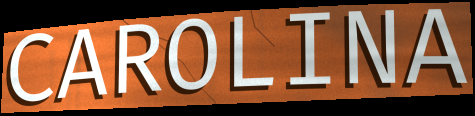
CAROLINA